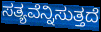
ಸತ್ಯವೆನ್ನಿಸುತ್ತದೆ